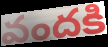
వందకి